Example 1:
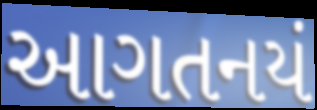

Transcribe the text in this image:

આગતનયં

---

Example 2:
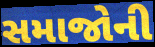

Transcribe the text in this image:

સમાજોની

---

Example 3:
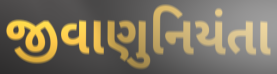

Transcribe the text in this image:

જીવાણુનિયંતા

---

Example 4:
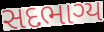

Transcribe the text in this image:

સદભાગ્ય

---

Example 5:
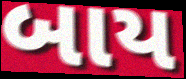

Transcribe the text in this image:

બાય